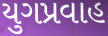
યુગપ્રવાહ